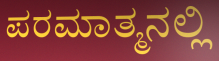
ಪರಮಾತ್ಮನಲ್ಲಿ